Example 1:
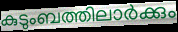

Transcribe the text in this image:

കുടുംബത്തിലാർക്കും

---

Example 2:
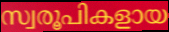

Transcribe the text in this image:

സ്വരൂപികളായ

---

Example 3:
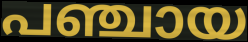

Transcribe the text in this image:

പഞ്ചായ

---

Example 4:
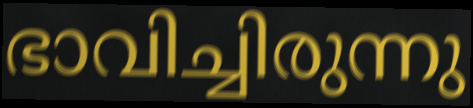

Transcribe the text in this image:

ഭാവിച്ചിരുന്നു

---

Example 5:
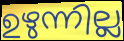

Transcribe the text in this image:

ഉഴുന്നില്ല